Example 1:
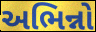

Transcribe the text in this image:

અભિન્નો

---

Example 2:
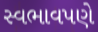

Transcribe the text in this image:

સ્વભાવપણે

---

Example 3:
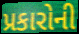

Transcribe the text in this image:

પ્રકારોની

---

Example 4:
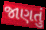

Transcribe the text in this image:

જાણતું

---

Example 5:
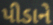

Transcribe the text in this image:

પીડાને